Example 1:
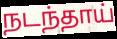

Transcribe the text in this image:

நடந்தாய்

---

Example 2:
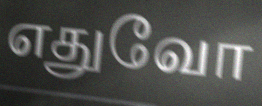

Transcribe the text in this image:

எதுவோ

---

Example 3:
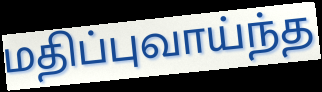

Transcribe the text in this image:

மதிப்புவாய்ந்த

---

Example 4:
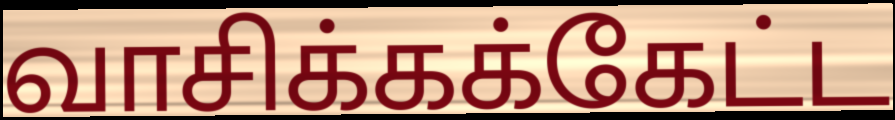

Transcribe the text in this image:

வாசிக்கக்கேட்ட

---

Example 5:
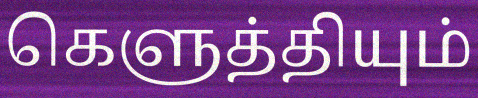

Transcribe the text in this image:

கெளுத்தியும்